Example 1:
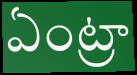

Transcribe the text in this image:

ఏంట్రా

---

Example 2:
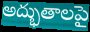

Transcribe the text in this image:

అద్భుతాలపై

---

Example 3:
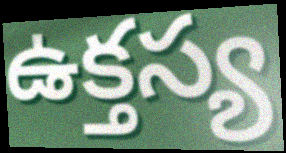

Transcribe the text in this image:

ఉక్తస్య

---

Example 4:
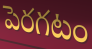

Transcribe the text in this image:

పెరగటం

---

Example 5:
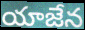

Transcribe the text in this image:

యాజేన